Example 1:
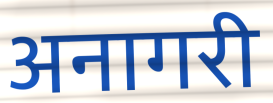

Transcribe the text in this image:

अनागरी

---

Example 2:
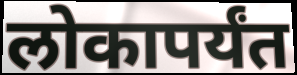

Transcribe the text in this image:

लोकापर्यंत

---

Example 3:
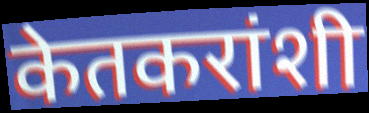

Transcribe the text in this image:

केतकरांशी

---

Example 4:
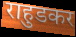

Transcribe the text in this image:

राहुडकर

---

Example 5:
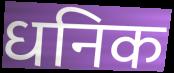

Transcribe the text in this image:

धनिक